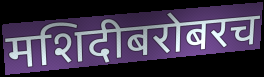
मशिदीबरोबरच